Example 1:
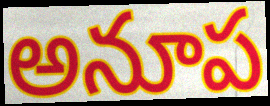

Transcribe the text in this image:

అనూప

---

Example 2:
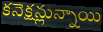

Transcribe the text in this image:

కనెక్షన్లున్నాయి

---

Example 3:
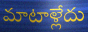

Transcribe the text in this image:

మాటాళ్లేదు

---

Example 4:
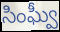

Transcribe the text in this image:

సింఘ్వీ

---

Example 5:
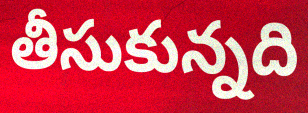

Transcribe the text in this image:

తీసుకున్నది